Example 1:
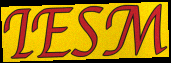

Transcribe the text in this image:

IESM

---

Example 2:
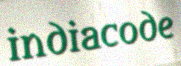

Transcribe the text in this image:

indiacode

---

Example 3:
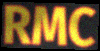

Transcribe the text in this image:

RMC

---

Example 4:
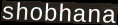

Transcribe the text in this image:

shobhana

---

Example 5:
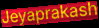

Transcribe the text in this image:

Jeyaprakash